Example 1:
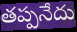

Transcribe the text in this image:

తప్పనేదు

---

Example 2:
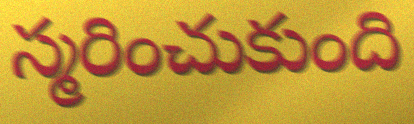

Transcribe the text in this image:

స్మరించుకుంది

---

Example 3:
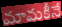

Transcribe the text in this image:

మామకీనే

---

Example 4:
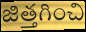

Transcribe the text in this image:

జిత్తగించి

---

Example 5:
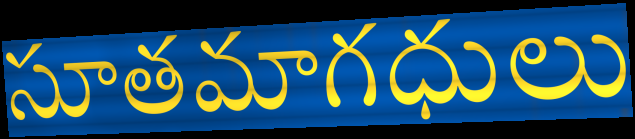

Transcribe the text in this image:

సూతమాగధులు